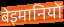
बेइमानियों